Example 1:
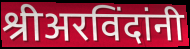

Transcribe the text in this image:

श्रीअरविंदांनी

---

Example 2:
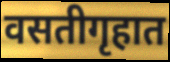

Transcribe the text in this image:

वसतीगृहात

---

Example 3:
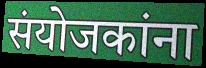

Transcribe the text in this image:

संयोजकांना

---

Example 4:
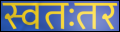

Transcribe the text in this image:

स्वतःतर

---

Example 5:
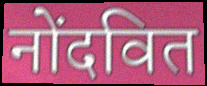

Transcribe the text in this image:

नोंदवित